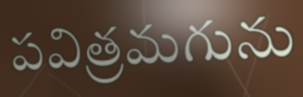
పవిత్రమగును